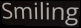
Smiling